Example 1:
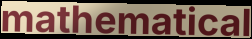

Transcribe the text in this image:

mathematical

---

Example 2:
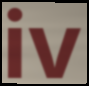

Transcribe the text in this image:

iv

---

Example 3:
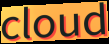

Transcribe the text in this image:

cloud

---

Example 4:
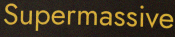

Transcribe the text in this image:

Supermassive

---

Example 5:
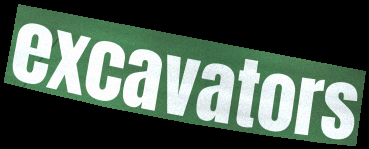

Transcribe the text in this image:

excavators